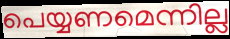
പെയ്യണമെന്നില്ല